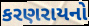
કરણરાયનો